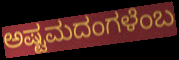
ಅಷ್ಟಮದಂಗಳೆಂಬ